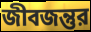
জীবজন্তুর